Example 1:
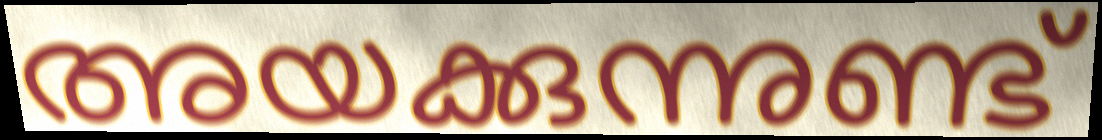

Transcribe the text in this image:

അയക്കുന്നുണ്ട്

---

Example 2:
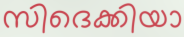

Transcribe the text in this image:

സിദെക്കിയാ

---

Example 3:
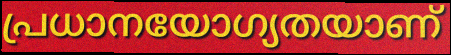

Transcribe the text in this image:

പ്രധാനയോഗ്യതയാണ്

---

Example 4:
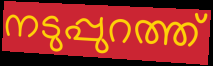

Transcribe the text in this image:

നടുപ്പുറത്ത്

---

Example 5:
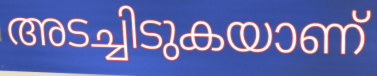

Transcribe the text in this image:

അടച്ചിടുകയാണ്